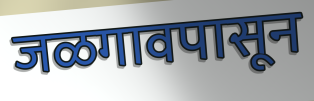
जळगावपासून